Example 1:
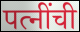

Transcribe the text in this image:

पत्नींची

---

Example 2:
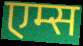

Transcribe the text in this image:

एम्स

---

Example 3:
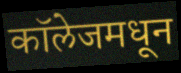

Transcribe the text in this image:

कॉलेजमधून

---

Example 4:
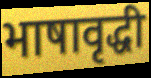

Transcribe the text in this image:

भाषावृद्धी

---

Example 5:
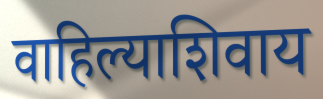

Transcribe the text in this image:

वाहिल्याशिवाय